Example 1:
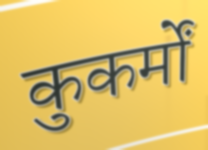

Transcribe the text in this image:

कुकर्मों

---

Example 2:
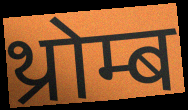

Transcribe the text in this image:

थ्रोम्ब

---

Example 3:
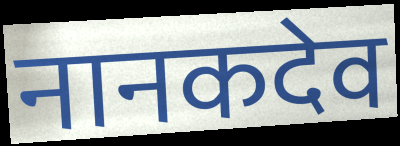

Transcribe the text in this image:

नानकदेव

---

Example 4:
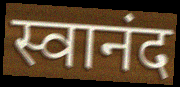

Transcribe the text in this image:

स्वानंद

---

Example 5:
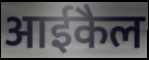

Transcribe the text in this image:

आईकैल